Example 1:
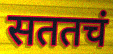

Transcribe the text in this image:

सततचं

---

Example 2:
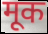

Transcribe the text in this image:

मूक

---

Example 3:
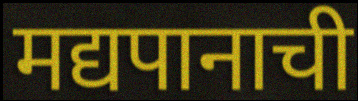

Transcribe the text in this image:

मद्यपानाची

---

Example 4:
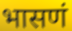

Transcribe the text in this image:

भासणं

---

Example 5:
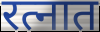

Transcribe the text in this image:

रत्नात